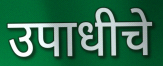
उपाधीचे